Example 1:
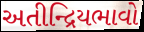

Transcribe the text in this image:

અતીન્દ્રિયભાવો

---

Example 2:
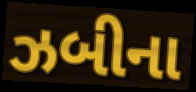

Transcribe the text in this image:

ઝબીના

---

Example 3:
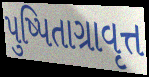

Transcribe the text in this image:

પુષ્પિતાગ્રાવૃત્ત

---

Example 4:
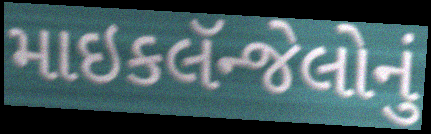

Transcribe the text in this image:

માઇકલૅન્જેલોનું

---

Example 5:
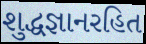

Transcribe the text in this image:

શુદ્ધજ્ઞાનરહિત